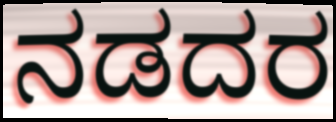
ನಡದರ